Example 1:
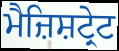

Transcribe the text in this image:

ਮੈਜ਼ਿਸ਼ਟ੍ਰੇਟ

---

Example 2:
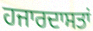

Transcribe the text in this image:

ਹਜਾਰਦਾਸਤਾਂ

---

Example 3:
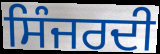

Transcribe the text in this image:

ਸਿੰਜਰਦੀ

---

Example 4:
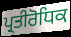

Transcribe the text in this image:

ਪ੍ਰਤੀਰੋਧਿਕ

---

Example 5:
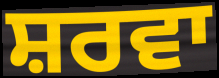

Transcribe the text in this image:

ਸ਼ਰਵਾ